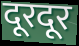
दूरदूर